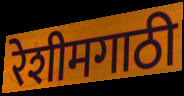
रेशीमगाठी